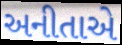
અનીતાએ